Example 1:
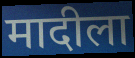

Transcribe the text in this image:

मादीला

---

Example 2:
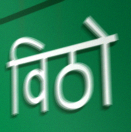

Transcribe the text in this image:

विठो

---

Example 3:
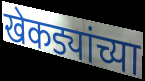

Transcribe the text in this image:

खेकड्यांच्या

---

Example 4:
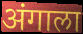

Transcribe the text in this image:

अंगाला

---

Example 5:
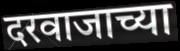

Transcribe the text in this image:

दरवाजाच्या